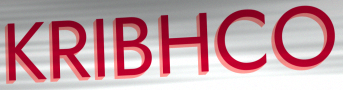
KRIBHCO